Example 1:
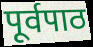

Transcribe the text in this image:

पूर्वपाठ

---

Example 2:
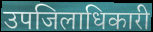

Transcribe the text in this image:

उपजिलाधिकारी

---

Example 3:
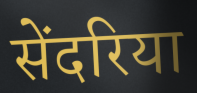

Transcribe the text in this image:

सेंदरिया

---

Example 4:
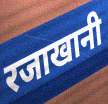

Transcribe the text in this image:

रजाखानी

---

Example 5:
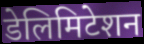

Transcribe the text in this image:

डेलिमिटेशन